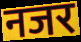
नजर